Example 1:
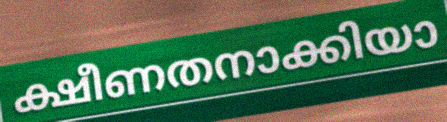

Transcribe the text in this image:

ക്ഷീണതനാക്കിയാ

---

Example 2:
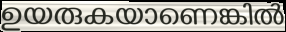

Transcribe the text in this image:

ഉയരുകയാണെങ്കിൽ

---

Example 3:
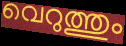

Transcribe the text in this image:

വെറുത്തും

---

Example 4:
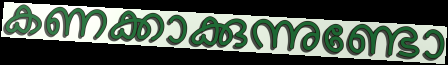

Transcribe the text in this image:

കണക്കാക്കുന്നുണ്ടോ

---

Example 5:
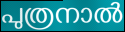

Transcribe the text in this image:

പുത്രനാൽ